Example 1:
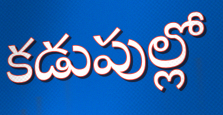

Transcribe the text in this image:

కడుపుల్లో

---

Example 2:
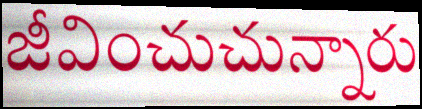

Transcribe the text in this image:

జీవించుచున్నారు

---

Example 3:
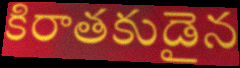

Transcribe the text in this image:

కిరాతకుడైన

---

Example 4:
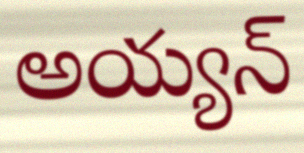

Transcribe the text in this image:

అయ్యన్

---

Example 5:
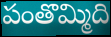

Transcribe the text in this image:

పంతొమ్మిది